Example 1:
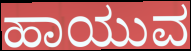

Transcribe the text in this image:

ಹಾಯುವ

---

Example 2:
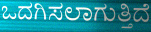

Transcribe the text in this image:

ಒದಗಿಸಲಾಗುತ್ತಿದೆ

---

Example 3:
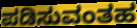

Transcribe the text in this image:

ಪಡಿಸುವಂತಹ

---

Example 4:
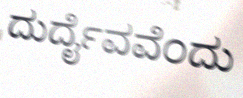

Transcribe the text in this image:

ದುರ್ದೈವವೆಂದು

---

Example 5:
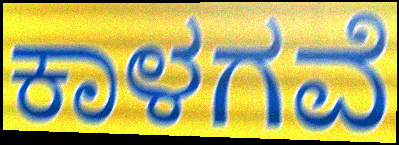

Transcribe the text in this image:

ಕಾಳಗವೆ